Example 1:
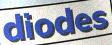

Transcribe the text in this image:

diodes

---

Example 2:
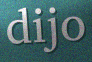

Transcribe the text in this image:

dijo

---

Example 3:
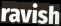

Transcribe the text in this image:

ravish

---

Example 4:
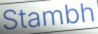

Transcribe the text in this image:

Stambh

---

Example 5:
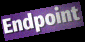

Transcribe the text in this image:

Endpoint